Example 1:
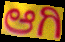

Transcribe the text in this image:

ಆಗಿ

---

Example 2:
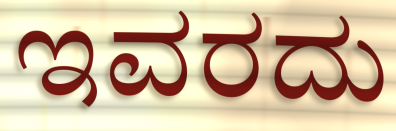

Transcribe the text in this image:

ಇವರದು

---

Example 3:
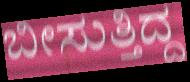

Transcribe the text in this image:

ಬೀಸುತ್ತಿದ್ದ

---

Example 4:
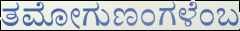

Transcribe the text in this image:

ತಮೋಗುಣಂಗಳೆಂಬ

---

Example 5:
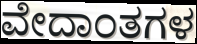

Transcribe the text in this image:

ವೇದಾಂತಗಳ